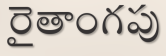
రైతాంగపు